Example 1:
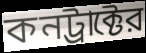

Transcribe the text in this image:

কনট্রাক্টের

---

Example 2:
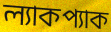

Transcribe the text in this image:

ল্যাকপ্যাক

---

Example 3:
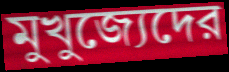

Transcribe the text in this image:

মুখুজ্যেদের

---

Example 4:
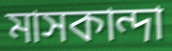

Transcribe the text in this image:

মাসকান্দা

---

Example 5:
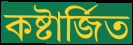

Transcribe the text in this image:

কষ্টার্জিত